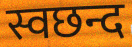
स्वछन्द